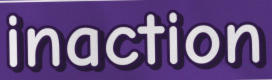
inaction